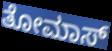
ತೋಮಾಸ್